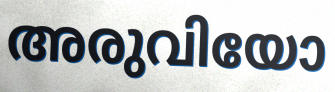
അരുവിയോ